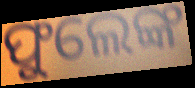
ଫୁଲେଙ୍କ